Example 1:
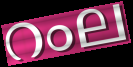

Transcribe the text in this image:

റംല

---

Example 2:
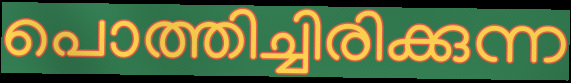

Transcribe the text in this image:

പൊത്തിച്ചിരിക്കുന്ന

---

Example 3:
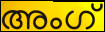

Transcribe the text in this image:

അംഗ്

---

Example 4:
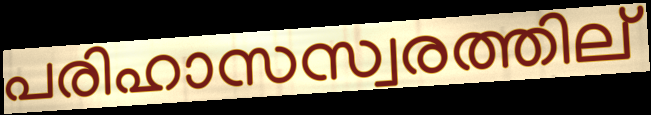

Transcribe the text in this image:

പരിഹാസസ്വരത്തില്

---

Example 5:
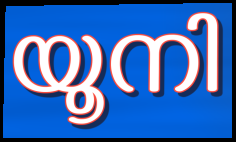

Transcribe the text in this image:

യൂനി